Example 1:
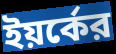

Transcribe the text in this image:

ইয়র্কের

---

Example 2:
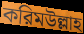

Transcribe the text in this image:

করিমউল্লাহ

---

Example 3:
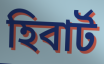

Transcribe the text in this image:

হিবার্ট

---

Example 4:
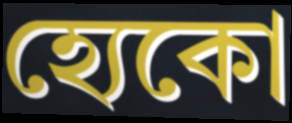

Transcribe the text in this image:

হ্যেকো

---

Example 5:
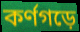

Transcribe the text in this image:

কর্ণগড়ে